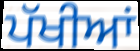
ਪੱਖੀਆਂ